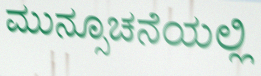
ಮುನ್ಸೂಚನೆಯಲ್ಲಿ